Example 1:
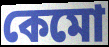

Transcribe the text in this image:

কেমো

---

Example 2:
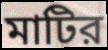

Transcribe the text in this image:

মাটির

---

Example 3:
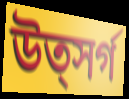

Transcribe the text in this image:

উত্সর্গ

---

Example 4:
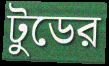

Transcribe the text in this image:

টুডের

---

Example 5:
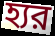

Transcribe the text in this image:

হ্যর